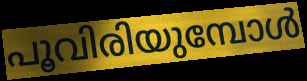
പൂവിരിയുമ്പോൾ